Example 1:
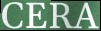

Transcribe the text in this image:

CERA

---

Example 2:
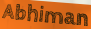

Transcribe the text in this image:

Abhiman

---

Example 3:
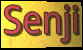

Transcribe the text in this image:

Senji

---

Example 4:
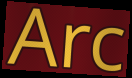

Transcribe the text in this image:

Arc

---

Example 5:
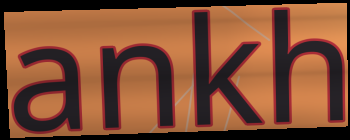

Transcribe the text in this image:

ankh